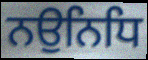
ਨਉਨਿਧਿ